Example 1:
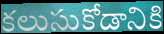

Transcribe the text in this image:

కలుసుకోడానికి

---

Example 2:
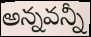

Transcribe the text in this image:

అన్నవన్నీ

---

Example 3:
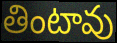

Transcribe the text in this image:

తింటావు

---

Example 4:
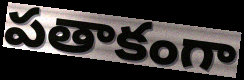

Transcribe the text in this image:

పతాకంగా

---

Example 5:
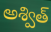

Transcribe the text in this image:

అశ్విత్